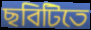
ছবিটিতে